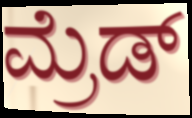
ಮ್ರೆಡ್